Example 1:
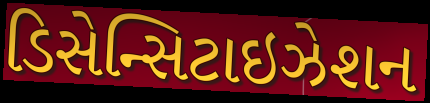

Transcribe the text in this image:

ડિસેન્સિટાઇઝેશન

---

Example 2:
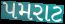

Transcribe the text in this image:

પમરાટ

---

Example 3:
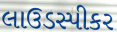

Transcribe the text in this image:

લાઉડસ્પીકર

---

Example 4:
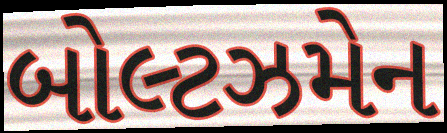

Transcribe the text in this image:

બોલ્ટઝમેન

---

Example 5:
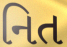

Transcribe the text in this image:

નિત